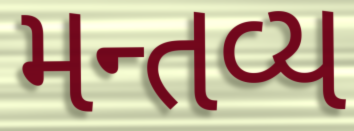
મન્તવ્ય